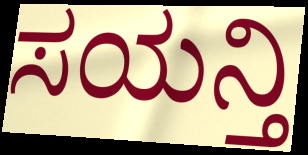
ಸಯನ್ತಿ